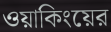
ওয়াকিংয়ের